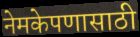
नेमकेपणासाठी